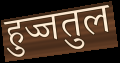
हुज्जतुल